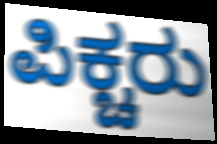
ಪಿಕ್ಚರು